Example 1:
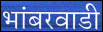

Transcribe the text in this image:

भांबरवाडी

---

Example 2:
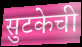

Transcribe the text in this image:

सुटकेची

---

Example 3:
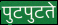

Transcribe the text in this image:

पुटपुटते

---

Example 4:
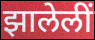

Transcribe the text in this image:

झालेलीं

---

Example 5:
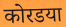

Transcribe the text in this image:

कोरडया